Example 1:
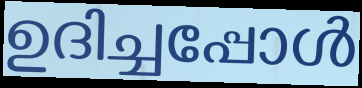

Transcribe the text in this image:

ഉദിച്ചപ്പോൾ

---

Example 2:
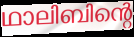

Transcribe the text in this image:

ഥാലിബിന്റെ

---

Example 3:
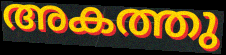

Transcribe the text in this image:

അകത്തു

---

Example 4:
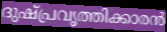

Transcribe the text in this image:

ദുഷ്പ്രവൃത്തിക്കാരൻ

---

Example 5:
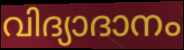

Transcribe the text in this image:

വിദ്യാദാനം